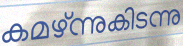
കമഴ്ന്നുകിടന്നു